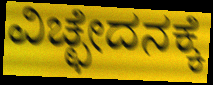
ವಿಚ್ಛೇದನಕ್ಕೆ